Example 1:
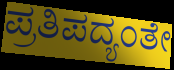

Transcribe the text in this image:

ಪ್ರತಿಪದ್ಯಂತೇ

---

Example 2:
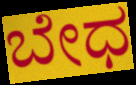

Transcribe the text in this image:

ಬೇಧ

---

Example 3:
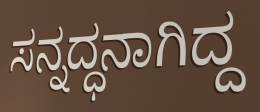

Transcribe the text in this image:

ಸನ್ನದ್ಧನಾಗಿದ್ದ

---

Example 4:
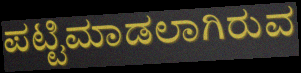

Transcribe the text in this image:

ಪಟ್ಟಿಮಾಡಲಾಗಿರುವ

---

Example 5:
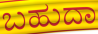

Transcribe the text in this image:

ಬಹುದಾ